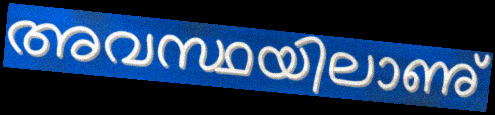
അവസ്ഥയിലാണു്